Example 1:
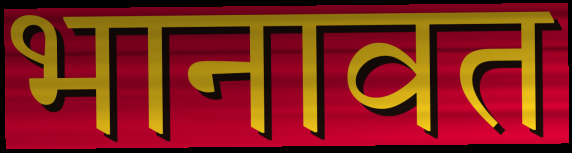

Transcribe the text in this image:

भानावत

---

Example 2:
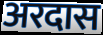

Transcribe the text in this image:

अरदास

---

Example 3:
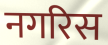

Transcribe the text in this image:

नगरिस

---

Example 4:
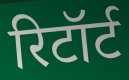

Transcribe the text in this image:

रिटॉर्ट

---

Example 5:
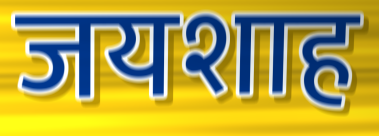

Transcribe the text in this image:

जयशाह